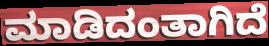
ಮಾಡಿದಂತಾಗಿದೆ